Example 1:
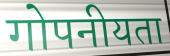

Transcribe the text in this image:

गोपनीयता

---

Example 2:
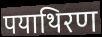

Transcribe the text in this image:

पयाथिरण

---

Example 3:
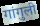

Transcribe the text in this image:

गांगुली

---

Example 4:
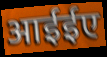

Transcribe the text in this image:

आईईए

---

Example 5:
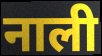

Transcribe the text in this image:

नाली